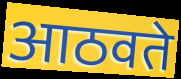
आठवते